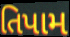
તિપામ